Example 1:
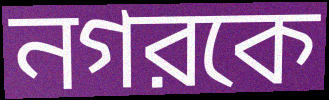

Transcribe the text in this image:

নগরকে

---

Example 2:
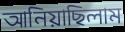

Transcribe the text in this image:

আনিয়াছিলাম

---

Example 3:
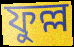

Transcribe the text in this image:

ফুল্ল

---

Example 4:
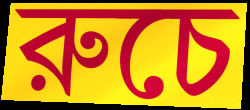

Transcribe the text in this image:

রুচে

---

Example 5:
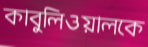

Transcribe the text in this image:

কাবুলিওয়ালকে